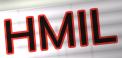
HMIL